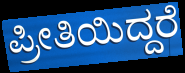
ಪ್ರೀತಿಯಿದ್ದರೆ